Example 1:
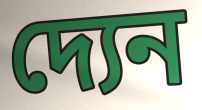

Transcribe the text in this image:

দ্যেন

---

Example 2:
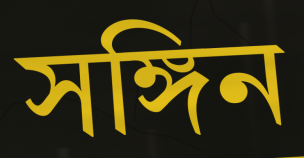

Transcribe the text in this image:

সঙ্গিন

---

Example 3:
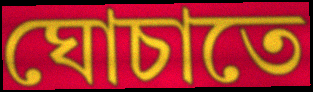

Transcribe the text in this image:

ঘোচাতে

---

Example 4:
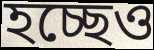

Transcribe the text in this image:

হচ্ছেও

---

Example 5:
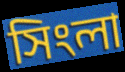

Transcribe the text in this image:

সিংলা